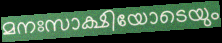
മനഃസാക്ഷിയോടെയും